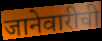
जानेवारीची